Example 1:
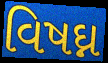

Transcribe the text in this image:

વિષઘ્ન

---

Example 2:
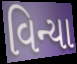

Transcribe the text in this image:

વિન્યા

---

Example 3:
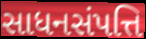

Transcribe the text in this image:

સાધનસંપત્તિ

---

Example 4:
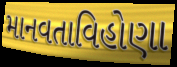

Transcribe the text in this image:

માનવતાવિહોણા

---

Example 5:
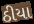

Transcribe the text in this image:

ઠીયા